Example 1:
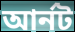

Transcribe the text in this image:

আর্নট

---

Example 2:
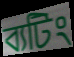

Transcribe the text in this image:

ব্যটিং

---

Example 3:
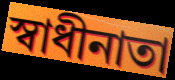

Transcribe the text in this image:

স্বাধীনাতা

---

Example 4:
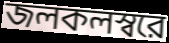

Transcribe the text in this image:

জলকলস্বরে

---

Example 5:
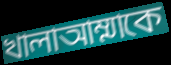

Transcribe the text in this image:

খালাআম্মাকে